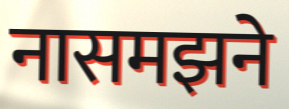
नासमझने